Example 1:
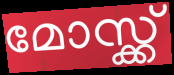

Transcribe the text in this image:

മോസ്ക്ക്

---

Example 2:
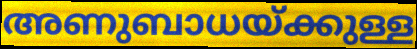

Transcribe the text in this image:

അണുബാധയ്ക്കുള്ള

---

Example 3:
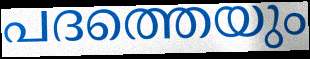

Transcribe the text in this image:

പദത്തെയും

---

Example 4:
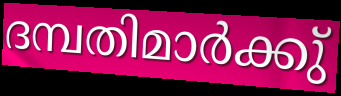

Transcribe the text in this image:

ദമ്പതിമാർക്കു്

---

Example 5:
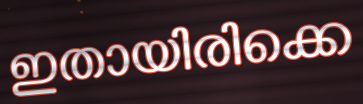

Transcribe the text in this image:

ഇതായിരിക്കെ